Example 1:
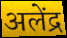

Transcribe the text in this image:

अलेंद्र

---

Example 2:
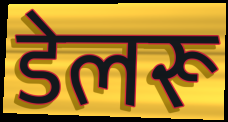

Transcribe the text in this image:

डेलरू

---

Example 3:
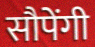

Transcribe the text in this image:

सौपेंगी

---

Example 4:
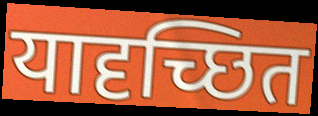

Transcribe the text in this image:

यादृच्छित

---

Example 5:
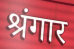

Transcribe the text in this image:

श्रंगार